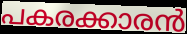
പകരക്കാരൻ